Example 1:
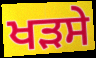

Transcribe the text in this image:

ਖੜਸੇ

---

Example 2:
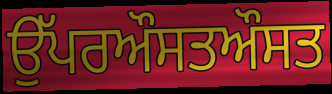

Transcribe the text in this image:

ਉੱਪਰਔਸਤਔਸਤ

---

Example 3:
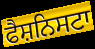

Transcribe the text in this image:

ਫੈਸ਼ਨਿਸਟਾ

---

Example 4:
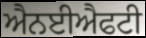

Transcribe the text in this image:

ਐਨਈਐਫਟੀ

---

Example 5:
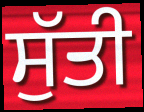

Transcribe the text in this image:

ਸੁੱਤੀ